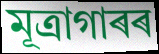
মূত্ৰাগাৰৰ